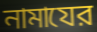
নামাযের